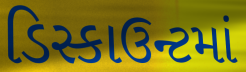
ડિસ્કાઉન્ટમાં